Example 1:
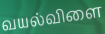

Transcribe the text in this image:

வயல்விளை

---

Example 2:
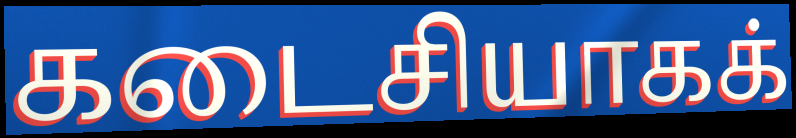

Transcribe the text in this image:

கடைசியாகக்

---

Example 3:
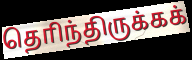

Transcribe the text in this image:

தெரிந்திருக்கக்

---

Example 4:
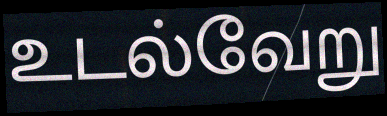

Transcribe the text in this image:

உடல்வேறு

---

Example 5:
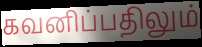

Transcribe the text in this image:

கவனிப்பதிலும்